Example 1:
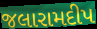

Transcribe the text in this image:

જલારામદીપ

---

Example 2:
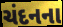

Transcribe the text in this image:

ચંદનના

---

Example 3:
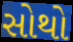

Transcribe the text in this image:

સોથો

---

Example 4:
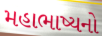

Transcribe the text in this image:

મહાભાષ્યનો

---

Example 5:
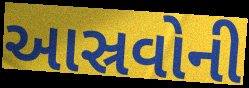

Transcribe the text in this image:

આસ્રવોની